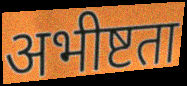
अभीष्टता